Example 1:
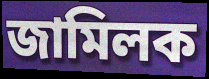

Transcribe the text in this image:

জামিলক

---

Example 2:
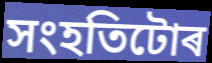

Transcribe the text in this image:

সংহতিটোৰ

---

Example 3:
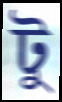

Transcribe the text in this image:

টু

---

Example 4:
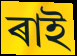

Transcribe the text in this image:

ৰাই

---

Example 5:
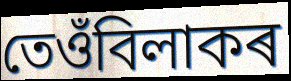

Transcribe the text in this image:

তেওঁবিলাকৰ